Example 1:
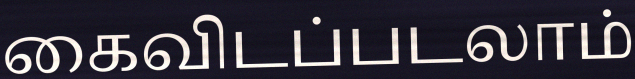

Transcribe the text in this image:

கைவிடப்படலாம்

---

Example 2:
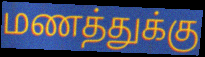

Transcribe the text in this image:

மணத்துக்கு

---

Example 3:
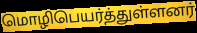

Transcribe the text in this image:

மொழிபெயர்த்துள்ளனர்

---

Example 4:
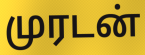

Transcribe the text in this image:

முரடன்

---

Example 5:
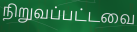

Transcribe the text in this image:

நிறுவப்பட்டவை